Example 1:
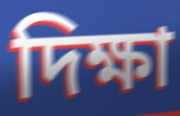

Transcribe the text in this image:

দিক্ষা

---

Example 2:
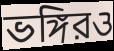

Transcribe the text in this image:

ভঙ্গিরও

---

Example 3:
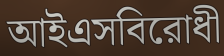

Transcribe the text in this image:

আইএসবিরোধী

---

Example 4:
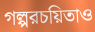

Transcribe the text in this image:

গল্পরচয়িতাও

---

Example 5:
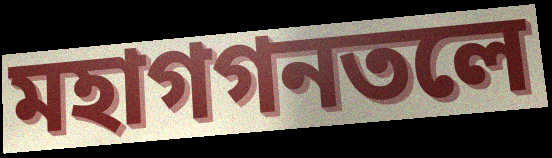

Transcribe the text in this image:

মহাগগনতলে